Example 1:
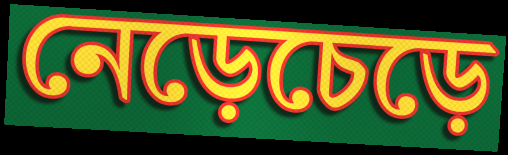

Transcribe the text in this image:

নেড়েচেড়ে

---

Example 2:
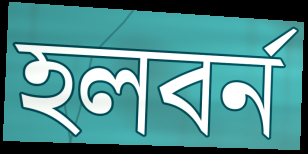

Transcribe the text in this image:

হলবর্ন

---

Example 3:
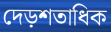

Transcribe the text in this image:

দেড়শতাধিক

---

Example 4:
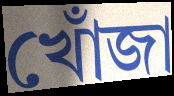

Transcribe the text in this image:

খোঁজা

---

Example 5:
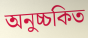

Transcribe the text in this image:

অনুচ্চকিত